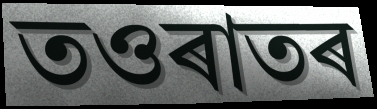
তওৰাতৰ